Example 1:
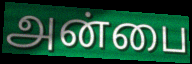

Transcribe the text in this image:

அன்பை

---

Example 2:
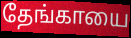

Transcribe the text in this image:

தேங்காயை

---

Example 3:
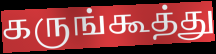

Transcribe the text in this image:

கருங்கூத்து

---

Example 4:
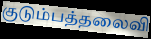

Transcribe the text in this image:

குடும்பத்தலைவி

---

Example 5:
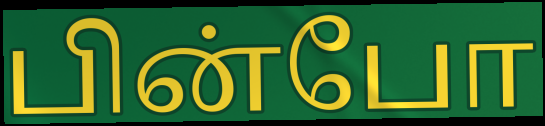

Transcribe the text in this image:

பின்போ